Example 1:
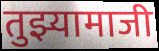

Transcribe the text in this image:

तुझ्यामाजी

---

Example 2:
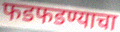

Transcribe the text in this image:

फडफडण्याचा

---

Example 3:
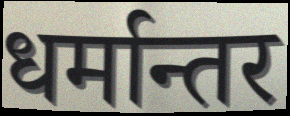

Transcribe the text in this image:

धर्मान्तर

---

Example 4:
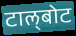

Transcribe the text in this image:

टाल्बोट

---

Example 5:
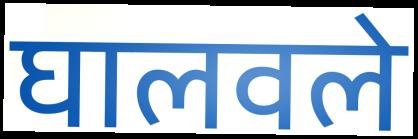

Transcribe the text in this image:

घालवले